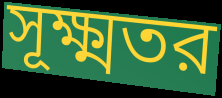
সূক্ষ্মতর